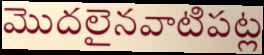
మొదలైనవాటిపట్ల